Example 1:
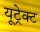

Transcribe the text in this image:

यूट्रेक्ट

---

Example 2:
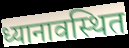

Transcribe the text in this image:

ध्यानावस्थित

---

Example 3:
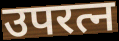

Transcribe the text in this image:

उपरत्न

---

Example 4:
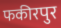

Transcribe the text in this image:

फकीरपुर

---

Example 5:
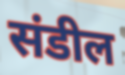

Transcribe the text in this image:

संडील